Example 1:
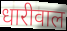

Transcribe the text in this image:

धारीवाल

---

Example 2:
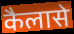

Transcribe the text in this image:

कैलासे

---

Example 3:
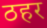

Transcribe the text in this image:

ठहर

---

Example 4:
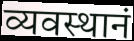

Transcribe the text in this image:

व्यवस्थानं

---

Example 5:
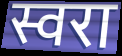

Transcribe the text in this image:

स्वरा